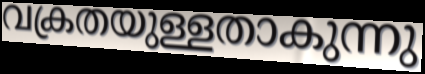
വക്രതയുള്ളതാകുന്നു